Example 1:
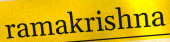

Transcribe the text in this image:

ramakrishna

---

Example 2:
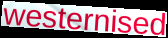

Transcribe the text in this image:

westernised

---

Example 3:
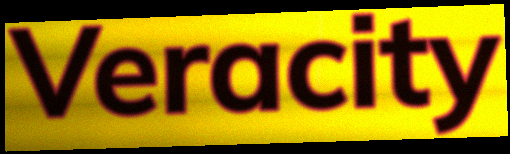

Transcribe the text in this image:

Veracity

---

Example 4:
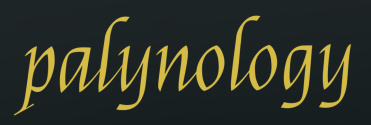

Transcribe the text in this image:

palynology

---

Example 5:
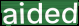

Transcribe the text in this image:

aided